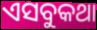
ଏସବୁକଥା